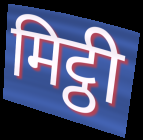
मिट्ठी